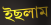
ইছলাম